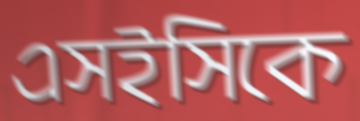
এসইসিকে